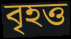
বৃহত্ত